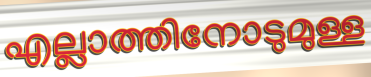
എല്ലാത്തിനോടുമുള്ള